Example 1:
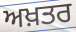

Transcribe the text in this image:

ਅਖ਼ਤਰ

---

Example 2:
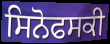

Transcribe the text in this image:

ਸਿਨੋਫਸਕੀ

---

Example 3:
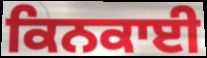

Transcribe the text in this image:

ਕਿਨਕਾਈ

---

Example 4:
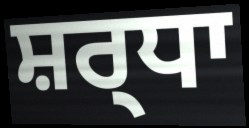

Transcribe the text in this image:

ਸ਼ਰ੍ਧਾ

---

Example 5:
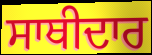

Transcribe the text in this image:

ਸਾਥੀਦਾਰ